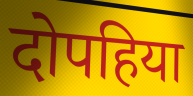
दोपहिया